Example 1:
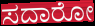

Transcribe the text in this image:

ಸದಾರೋ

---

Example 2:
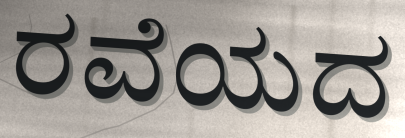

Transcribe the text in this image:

ರವೆಯದ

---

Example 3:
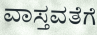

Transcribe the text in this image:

ವಾಸ್ತವತೆಗೆ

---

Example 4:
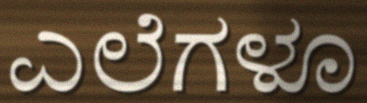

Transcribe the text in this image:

ಎಲೆಗಳೂ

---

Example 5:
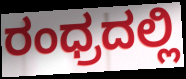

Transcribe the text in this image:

ರಂಧ್ರದಲ್ಲಿ